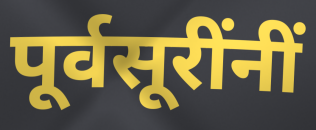
पूर्वसूरींनीं